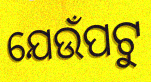
ଯେଉଁପଟୁ